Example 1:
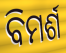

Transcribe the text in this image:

ବିମର୍ଶ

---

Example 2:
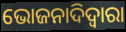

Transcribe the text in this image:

ଭୋଜନାଦିଦ୍ୱାରା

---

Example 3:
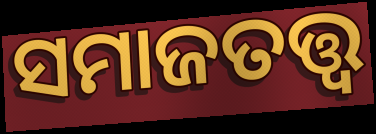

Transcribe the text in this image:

ସମାଜତତ୍ତ୍ୱ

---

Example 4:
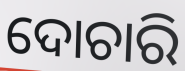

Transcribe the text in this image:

ଦୋଚାରି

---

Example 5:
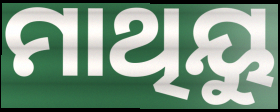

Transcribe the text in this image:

ମାଥିୟୁ